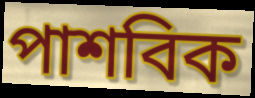
পাশবিক